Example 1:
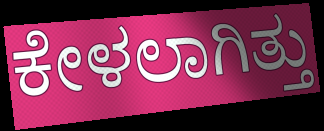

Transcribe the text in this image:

ಕೇಳಲಾಗಿತ್ತು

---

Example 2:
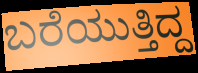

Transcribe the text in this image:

ಬರೆಯುತ್ತಿದ್ದ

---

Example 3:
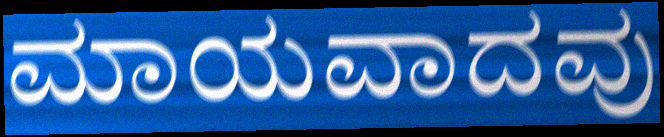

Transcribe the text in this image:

ಮಾಯವಾದವು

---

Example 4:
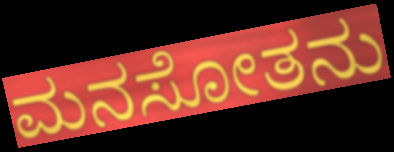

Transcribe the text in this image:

ಮನಸೋತನು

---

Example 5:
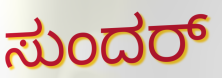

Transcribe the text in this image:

ಸುಂದರ್